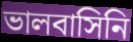
ভালবাসিনি